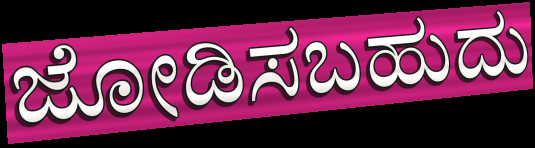
ಜೋಡಿಸಬಹುದು